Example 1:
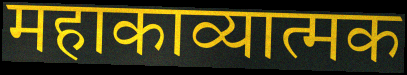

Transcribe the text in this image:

महाकाव्यात्मक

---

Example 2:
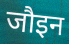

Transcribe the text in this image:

जौइन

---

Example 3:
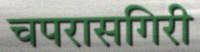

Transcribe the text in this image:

चपरासगिरी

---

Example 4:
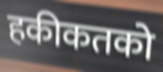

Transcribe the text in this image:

हकीकतको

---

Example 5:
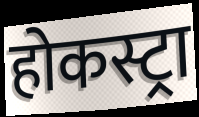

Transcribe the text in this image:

होकस्ट्रा